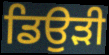
ਡਿਉੜੀ